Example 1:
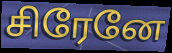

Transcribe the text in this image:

சிரேனே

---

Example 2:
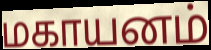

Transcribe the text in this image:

மகாயனம்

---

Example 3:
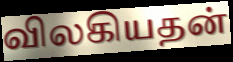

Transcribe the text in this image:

விலகியதன்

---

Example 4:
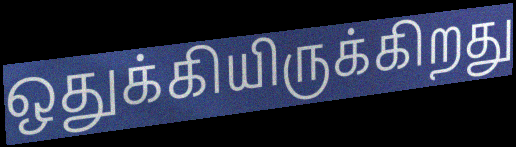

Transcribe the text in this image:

ஒதுக்கியிருக்கிறது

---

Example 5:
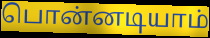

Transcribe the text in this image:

பொன்னடியாம்